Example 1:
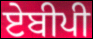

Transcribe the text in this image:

ਏਬੀਪੀ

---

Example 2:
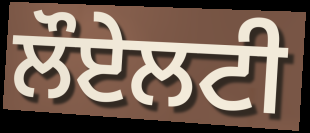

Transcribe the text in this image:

ਲੌਏਲਟੀ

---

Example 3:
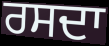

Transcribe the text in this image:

ਰਸਦਾ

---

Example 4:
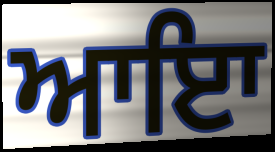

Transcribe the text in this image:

ਆਇਾ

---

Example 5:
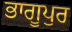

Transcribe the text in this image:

ਭਾਗੂਪੁਰ